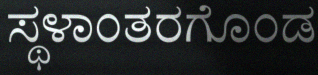
ಸ್ಥಳಾಂತರಗೊಂಡ